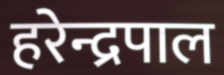
हरेन्द्रपाल